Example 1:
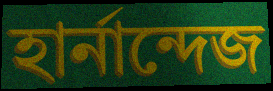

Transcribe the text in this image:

হার্নান্দেজ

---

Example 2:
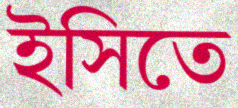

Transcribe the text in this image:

ইসিতে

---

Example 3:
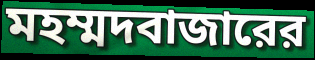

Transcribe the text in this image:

মহম্মদবাজারের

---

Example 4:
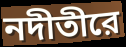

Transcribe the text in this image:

নদীতীরে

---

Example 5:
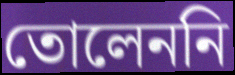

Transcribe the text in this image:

তোলেননি